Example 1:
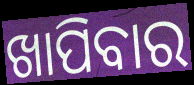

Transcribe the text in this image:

ଖାପିବାର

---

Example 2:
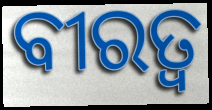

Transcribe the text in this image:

ବୀରତ୍ଵ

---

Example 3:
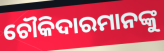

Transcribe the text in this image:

ଚୌକିଦାରମାନଙ୍କୁ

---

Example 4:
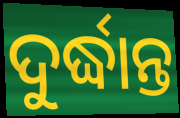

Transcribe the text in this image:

ଦୁର୍ଦ୍ଧାନ୍ତ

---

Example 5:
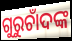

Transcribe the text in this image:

ଗୁରୁଚାଁଦଙ୍କ